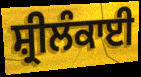
ਸ਼੍ਰੀਲੰਕਾਈ